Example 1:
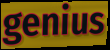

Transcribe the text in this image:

genius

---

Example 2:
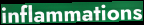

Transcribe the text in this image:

inflammations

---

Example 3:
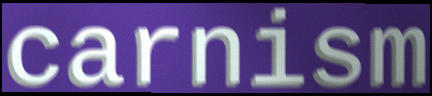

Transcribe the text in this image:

carnism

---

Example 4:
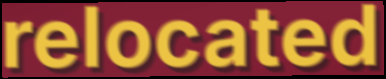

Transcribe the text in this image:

relocated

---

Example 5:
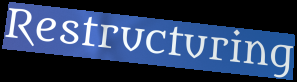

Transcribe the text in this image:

Restructuring